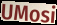
UMosi